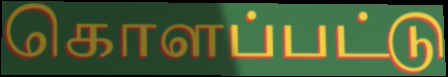
கொளப்பட்டு